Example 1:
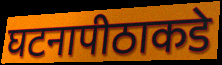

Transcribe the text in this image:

घटनापीठाकडे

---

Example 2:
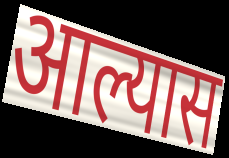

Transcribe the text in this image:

आल्यास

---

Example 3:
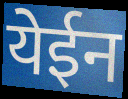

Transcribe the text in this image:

येईन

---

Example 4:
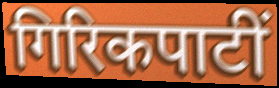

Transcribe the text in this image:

गिरिकपाटीं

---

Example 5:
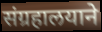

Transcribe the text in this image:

संग्रहालयाने